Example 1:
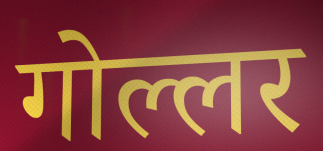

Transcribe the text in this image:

गोल्लर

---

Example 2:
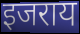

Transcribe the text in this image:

इजराय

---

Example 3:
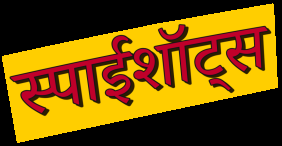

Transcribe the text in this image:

स्पाईशॉट्स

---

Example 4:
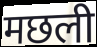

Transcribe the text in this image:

मछली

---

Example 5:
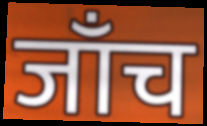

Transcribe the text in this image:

जाँच